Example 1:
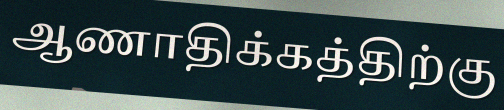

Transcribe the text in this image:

ஆணாதிக்கத்திற்கு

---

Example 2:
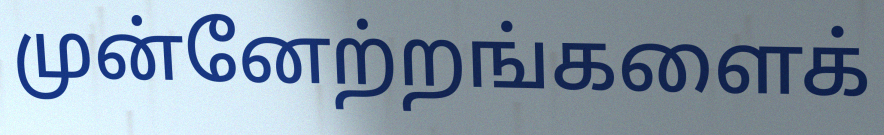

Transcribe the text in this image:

முன்னேற்றங்களைக்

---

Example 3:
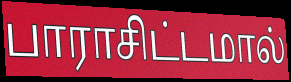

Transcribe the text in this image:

பாராசிட்டமால்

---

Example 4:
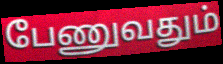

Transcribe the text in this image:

பேணுவதும்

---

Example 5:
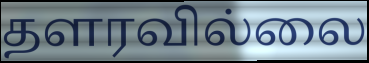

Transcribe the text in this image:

தளரவில்லை